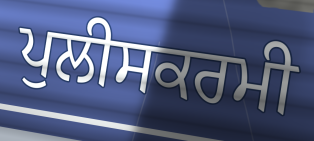
ਪੁਲੀਸਕਰਮੀ